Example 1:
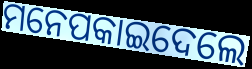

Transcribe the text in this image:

ମନେପକାଇଦେଲେ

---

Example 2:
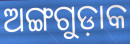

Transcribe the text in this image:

ଅଙ୍ଗଗୁଡ଼ାକ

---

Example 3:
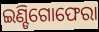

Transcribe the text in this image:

ଇଣ୍ଡିଗୋଫେରା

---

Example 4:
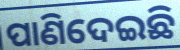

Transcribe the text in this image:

ପାଣିଦେଇଛି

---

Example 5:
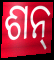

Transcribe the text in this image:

ଶନ୍